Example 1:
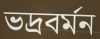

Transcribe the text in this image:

ভদ্রবর্মন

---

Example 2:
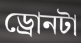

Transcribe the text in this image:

ড্রোনটা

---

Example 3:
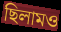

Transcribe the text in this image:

ছিলামও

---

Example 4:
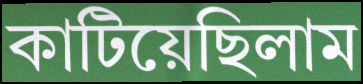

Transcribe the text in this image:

কাটিয়েছিলাম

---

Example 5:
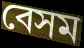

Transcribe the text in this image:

বেসম